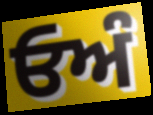
ਓਅੰ